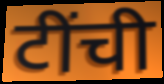
टींची